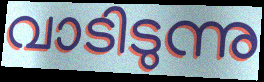
വാടിടുന്നു